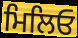
ਮਿਲਿਓ